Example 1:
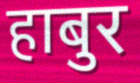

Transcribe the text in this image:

हाबुर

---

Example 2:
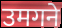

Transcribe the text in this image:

उमगने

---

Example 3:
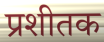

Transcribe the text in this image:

प्रशीतक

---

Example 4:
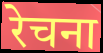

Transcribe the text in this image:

रेचना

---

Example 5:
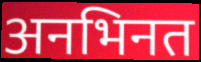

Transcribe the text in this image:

अनभिनत